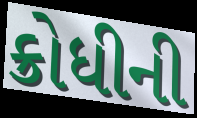
ક્રોધીની